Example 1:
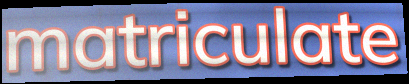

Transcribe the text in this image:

matriculate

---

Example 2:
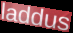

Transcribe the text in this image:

laddus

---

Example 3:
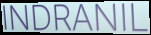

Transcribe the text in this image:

INDRANIL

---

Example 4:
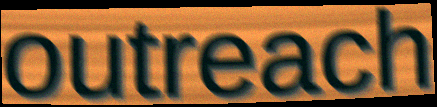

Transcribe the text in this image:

outreach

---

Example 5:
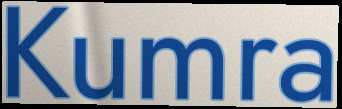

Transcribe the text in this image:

Kumra